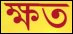
ক্ষত